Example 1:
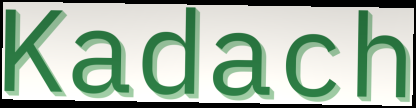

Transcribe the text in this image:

Kadach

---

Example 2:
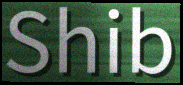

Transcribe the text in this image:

Shib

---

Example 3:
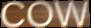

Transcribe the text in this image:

COW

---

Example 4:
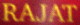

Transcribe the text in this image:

RAJAT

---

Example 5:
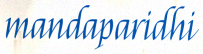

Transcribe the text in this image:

mandaparidhi